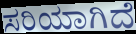
ಸರಿಯಾಗಿದೆ